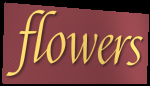
flowers